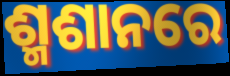
ଶ୍ମଶାନରେ